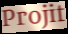
Projit